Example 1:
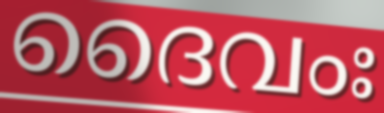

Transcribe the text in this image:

ദൈവംഃ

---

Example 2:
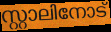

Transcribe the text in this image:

സ്റ്റാലിനോട്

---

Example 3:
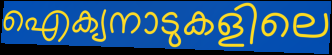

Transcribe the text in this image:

ഐക്യനാടുകളിലെ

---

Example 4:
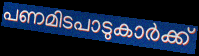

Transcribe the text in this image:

പണമിടപാടുകാർക്ക്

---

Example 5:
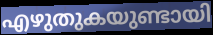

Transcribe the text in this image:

എഴുതുകയുണ്ടായി